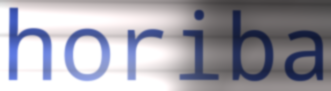
horiba